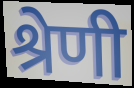
श्रेणी